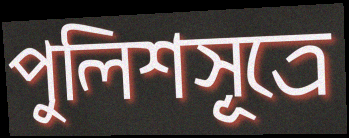
পুলিশসূত্রে